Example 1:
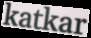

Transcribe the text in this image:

katkar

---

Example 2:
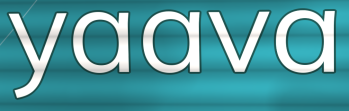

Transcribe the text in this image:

yaava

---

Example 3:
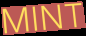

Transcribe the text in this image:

MINT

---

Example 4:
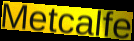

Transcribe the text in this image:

Metcalfe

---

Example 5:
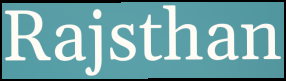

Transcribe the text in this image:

Rajsthan